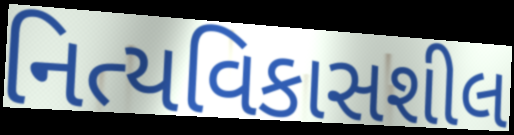
નિત્યવિકાસશીલ